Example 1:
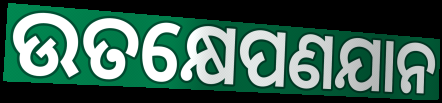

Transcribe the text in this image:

ଉତକ୍ଷେପଣଯାନ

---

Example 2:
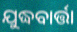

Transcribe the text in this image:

ଯୁଦ୍ଧବାର୍ତ୍ତା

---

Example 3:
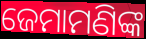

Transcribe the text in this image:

ଜେମାମଣିଙ୍କ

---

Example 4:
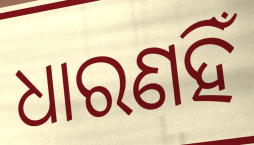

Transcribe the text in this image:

ଧାରଣହିଁ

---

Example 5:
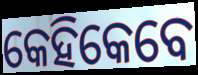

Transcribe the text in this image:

କେହିକେବେ